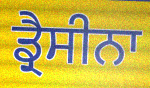
ਡ੍ਰੈਸੀਨਾ